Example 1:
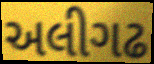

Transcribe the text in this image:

અલીગઢ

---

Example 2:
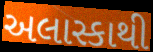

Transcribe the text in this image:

અલાસ્કાથી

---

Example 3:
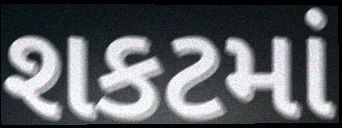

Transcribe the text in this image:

શકટમાં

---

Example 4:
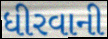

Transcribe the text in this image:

ધીરવાની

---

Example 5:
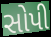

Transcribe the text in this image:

સોપી